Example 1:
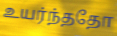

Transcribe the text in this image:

உயர்ந்ததோ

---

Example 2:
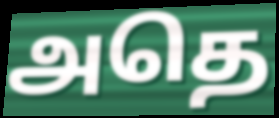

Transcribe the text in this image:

அதெ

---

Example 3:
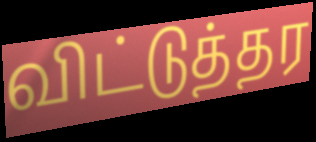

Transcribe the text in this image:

விட்டுத்தர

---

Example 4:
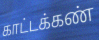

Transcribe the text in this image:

காட்டக்கண்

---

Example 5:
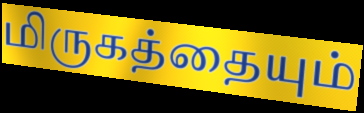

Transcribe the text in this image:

மிருகத்தையும்